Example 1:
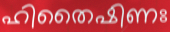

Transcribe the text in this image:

ഹിതൈഷിണഃ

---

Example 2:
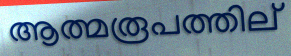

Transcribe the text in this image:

ആത്മരൂപത്തില്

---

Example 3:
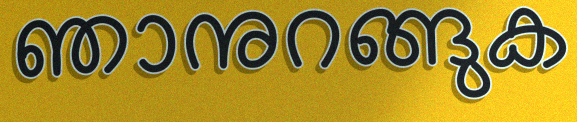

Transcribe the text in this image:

ഞാനുറങ്ങുക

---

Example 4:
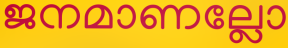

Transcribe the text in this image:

ജനമാണല്ലോ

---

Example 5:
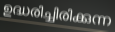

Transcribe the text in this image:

ഉദ്ധരിച്ചിരിക്കുന്ന